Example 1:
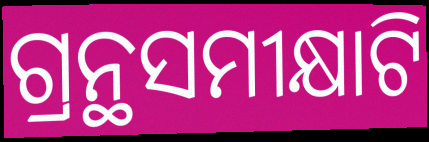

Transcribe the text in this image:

ଗ୍ରନ୍ଥସମୀକ୍ଷାଟି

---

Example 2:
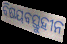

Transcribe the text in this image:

ବିଷୟବସ୍ତୁହୀନ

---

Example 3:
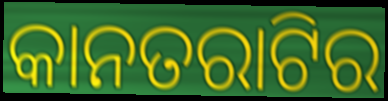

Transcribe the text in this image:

କାନତରାଟିର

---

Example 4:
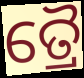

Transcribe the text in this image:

ତ୍ରୈ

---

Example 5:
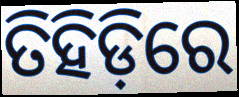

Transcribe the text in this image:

ତିହିଡ଼ିରେ